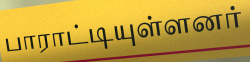
பாராட்டியுள்ளனர்